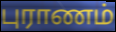
புராணம்